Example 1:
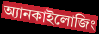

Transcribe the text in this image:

অ্যানকাইলোজিং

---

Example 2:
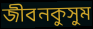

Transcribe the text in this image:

জীবনকুসুম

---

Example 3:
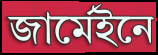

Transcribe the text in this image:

জার্মেইনে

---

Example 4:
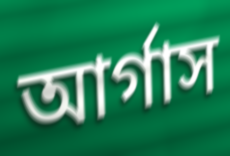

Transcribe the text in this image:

আর্গাস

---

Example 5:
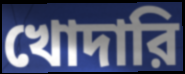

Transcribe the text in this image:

খোদারি